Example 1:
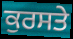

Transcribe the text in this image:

ਕੁਰਸਤੇ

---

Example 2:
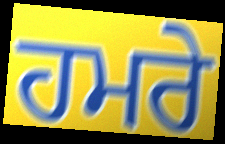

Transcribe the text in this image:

ਹਮਰੇ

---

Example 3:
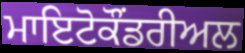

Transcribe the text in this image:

ਮਾਇਟੋਕੌਂਡਰੀਅਲ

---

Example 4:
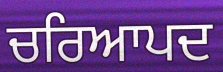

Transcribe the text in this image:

ਚਰਿਆਪਦ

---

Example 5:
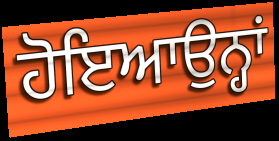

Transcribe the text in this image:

ਹੋਇਆਉਨ੍ਹਾਂ